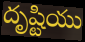
దృష్టియు